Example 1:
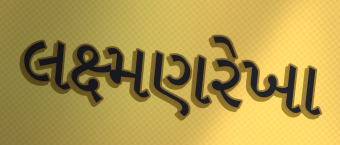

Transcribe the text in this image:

લક્ષ્મણરેખા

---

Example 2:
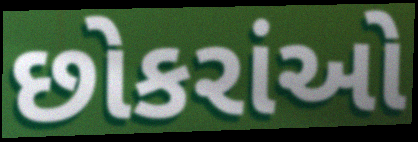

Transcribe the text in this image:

છોકરાંઓ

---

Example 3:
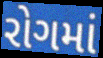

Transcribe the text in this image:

રોગમાં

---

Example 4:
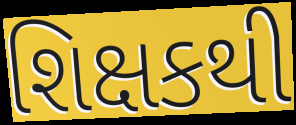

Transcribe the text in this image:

શિક્ષકથી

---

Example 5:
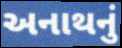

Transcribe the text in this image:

અનાથનું